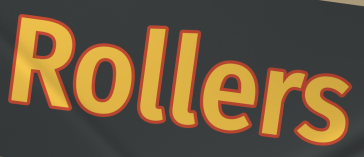
Rollers